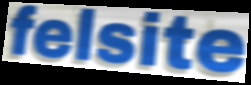
felsite